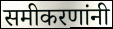
समीकरणांनी